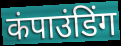
कंपाउंडिंग